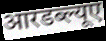
आरडब्ल्यूए